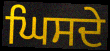
ਘਿਸਦੇ